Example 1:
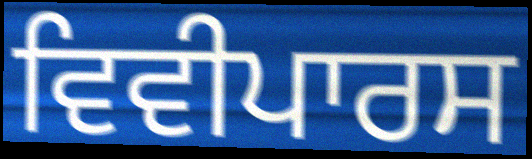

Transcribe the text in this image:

ਵਿਵੀਪਾਰਸ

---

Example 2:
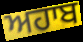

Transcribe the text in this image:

ਅਹਾਬ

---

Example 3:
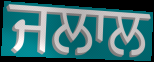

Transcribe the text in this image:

ਜਲਾਲ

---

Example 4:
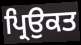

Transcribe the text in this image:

ਪ੍ਰਿਉਕਤ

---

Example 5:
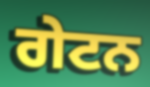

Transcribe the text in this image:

ਗੇਟਨ